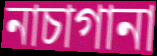
নাচাগানা